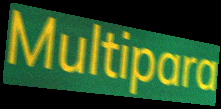
Multipara